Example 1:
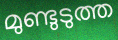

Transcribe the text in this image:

മുണ്ടുടുത്ത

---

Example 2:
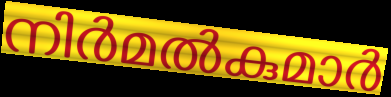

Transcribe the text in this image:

നിർമൽകുമാർ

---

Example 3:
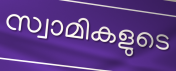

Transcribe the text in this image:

സ്വാമികളുടെ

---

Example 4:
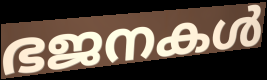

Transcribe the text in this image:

ഭജനകൾ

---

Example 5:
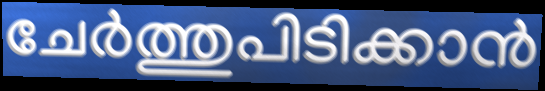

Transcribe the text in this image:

ചേർത്തുപിടിക്കാൻ